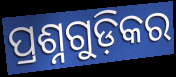
ପ୍ରଶ୍ନଗୁଡ଼ିକର